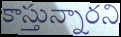
కాస్తున్నారని